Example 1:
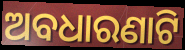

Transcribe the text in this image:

ଅବଧାରଣାଟି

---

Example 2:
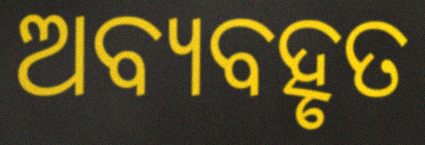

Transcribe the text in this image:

ଅବ୍ୟବହୃତ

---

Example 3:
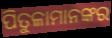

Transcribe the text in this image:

ପିତୁଳାମାନଙ୍କର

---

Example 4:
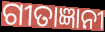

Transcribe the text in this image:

ଗୀତାଜ୍ଞାନୀ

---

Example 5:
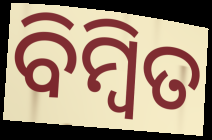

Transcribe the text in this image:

ବିମ୍ବିତ